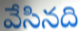
వేసినది